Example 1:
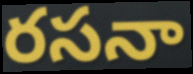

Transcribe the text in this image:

రసనా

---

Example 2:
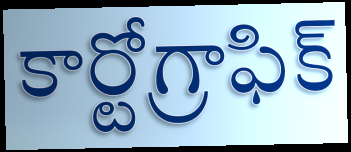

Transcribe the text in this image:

కార్టోగ్రాఫిక్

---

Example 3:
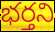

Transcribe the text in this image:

భర్తని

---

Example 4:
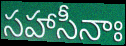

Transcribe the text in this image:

సహాసీనాః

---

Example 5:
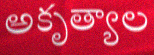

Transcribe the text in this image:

అకృత్యాల